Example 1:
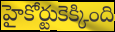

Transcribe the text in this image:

హైకోర్టుకెక్కింది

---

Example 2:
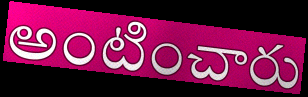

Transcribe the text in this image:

అంటించారు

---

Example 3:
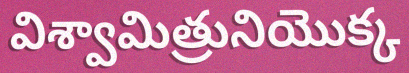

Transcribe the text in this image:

విశ్వామిత్రునియొక్క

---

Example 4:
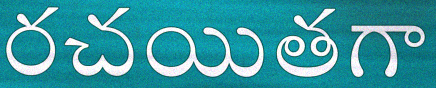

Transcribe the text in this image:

రచయితగా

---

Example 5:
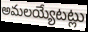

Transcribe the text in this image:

అమలయ్యేటట్లు